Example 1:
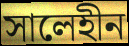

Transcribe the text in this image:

সালেহীন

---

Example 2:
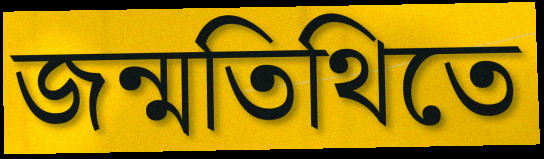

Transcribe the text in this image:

জন্মতিথিতে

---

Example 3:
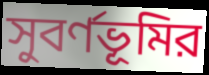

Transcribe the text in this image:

সুবর্ণভূমির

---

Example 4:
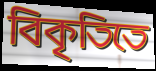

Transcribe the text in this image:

বিকৃতিতে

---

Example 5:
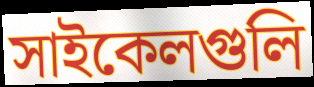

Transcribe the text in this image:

সাইকেলগুলি